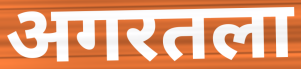
अगरतला